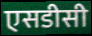
एसडीसी